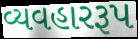
વ્યવહારરૂપ